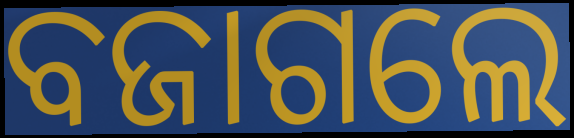
ବଜାଗଲେ